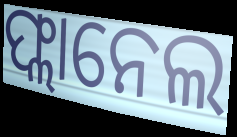
ଫ୍ଲାନେଲ